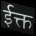
ईक्त